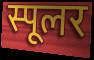
स्पूलर